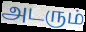
அடரும்